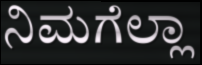
ನಿಮಗೆಲ್ಲಾ